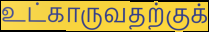
உட்காருவதற்குக்